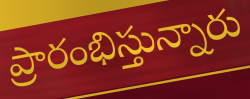
ప్రారంభిస్తున్నారు